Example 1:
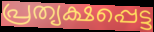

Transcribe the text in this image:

പ്രത്യക്ഷപ്പെട്ട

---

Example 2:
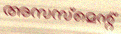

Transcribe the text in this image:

അസസ്മെന്റ്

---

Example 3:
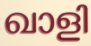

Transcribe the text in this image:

ഖാളി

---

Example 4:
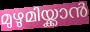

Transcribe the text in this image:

മുഴുമിയ്ക്കാൻ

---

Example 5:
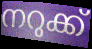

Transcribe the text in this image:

നറുക്ക്